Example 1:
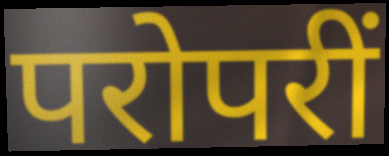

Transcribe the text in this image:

परोपरीं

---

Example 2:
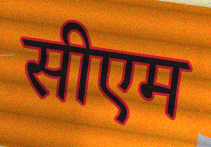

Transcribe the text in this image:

सीएम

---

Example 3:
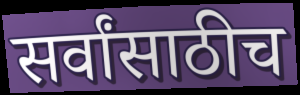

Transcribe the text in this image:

सर्वांसाठीच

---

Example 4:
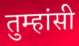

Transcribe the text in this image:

तुम्हांसी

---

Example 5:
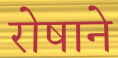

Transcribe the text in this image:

रोषाने